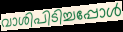
വാശിപിടിച്ചപ്പോൾ